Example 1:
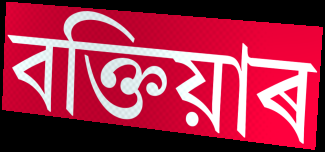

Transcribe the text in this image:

বক্তিয়াৰ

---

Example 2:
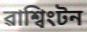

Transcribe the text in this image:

ৱাশ্বিংটন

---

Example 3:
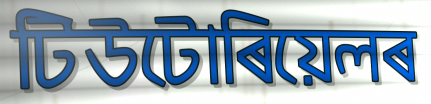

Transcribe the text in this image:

টিউটোৰিয়েলৰ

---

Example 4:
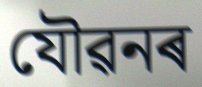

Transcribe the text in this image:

যৌৱনৰ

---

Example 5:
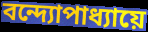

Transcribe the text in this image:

বন্দ্যোপাধ্যায়ে